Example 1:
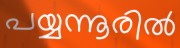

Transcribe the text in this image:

പയ്യന്നൂരിൽ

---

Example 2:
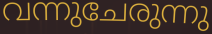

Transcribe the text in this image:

വന്നുചേരുന്നു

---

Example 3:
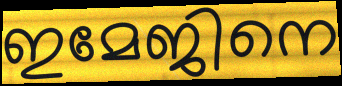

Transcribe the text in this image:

ഇമേജിനെ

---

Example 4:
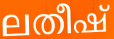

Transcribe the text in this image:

ലതീഷ്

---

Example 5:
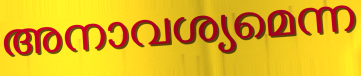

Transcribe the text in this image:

അനാവശ്യമെന്ന